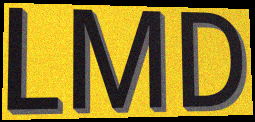
LMD